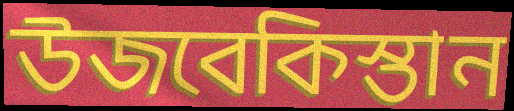
উজবেকিস্তান